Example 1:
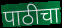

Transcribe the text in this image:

पाठीचा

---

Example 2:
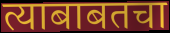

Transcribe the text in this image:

त्याबाबतचा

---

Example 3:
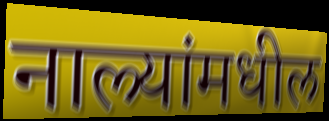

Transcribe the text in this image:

नाल्यांमधील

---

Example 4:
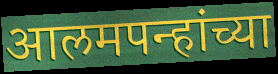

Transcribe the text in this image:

आलमपन्हांच्या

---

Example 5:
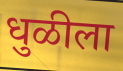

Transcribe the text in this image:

धुळीला